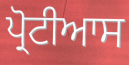
ਪ੍ਰੋਟੀਆਸ